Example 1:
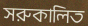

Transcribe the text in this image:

সৰুকালিত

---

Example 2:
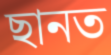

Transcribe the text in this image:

ছানত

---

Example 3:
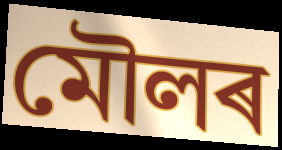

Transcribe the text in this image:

মৌলৰ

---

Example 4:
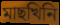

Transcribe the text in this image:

মাছখিনি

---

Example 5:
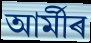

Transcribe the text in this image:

আৰ্মীৰ